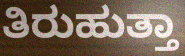
ತಿರುಹುತ್ತಾ